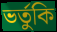
ভর্তুকি